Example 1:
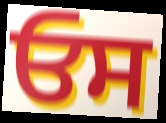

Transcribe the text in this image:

ਓਸ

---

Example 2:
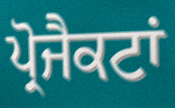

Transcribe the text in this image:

ਪ੍ਰੋਜੈਕਟਾਂ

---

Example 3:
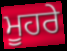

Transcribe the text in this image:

ਮੂਹਰੇ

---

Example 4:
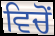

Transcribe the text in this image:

ਵਿਚੋਂ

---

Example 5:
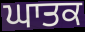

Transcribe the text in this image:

ਘਾਤਕ